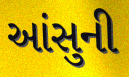
આંસુની